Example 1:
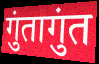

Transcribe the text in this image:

गुंतागुंत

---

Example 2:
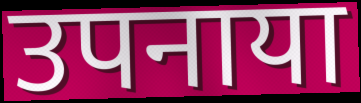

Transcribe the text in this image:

उपनाया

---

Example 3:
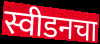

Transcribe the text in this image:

स्वीडनचा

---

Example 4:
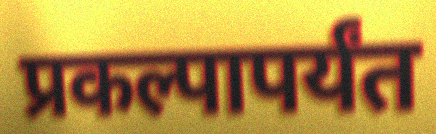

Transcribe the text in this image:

प्रकल्पापर्यंत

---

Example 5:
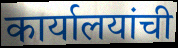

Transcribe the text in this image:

कार्यालयांची